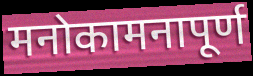
मनोकामनापूर्ण